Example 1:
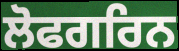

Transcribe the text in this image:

ਲੋਫਗਰਿਨ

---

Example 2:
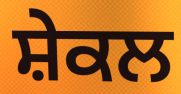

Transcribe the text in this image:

ਸ਼ੇਕਲ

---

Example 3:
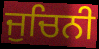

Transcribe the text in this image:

ਜੁਚਿਨੀ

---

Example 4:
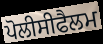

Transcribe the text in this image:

ਪੋਲੀਸੀਫੈਲਮ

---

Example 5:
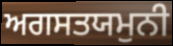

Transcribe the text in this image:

ਅਗਸਤਯਮੁਨੀ